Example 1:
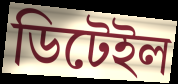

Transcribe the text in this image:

ডিটেইল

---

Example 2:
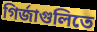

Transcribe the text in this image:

গির্জাগুলিতে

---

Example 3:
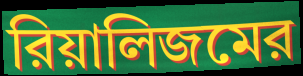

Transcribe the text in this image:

রিয়ালিজমের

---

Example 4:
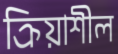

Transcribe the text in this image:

ক্রিয়াশীল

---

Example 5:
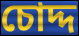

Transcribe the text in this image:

চোদ্দ